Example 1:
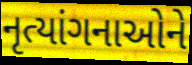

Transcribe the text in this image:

નૃત્યાંગનાઓને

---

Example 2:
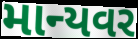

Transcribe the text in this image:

માન્યવર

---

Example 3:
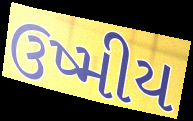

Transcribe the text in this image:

ઉષ્મીય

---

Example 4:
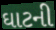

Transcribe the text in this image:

ઘાટની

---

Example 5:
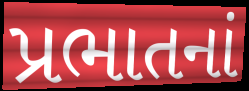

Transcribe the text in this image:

પ્રભાતનાં